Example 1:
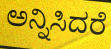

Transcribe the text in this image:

ಅನ್ನಿಸಿದರೆ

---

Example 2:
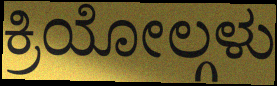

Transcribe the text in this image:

ಕ್ರಿಯೋಲ್ಗಳು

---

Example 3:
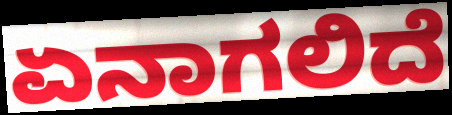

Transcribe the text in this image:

ಏನಾಗಲಿದೆ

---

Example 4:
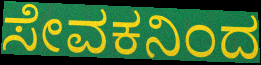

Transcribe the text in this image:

ಸೇವಕನಿಂದ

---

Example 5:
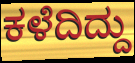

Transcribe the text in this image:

ಕಳೆದಿದ್ದು